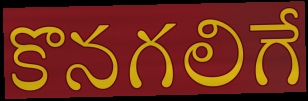
కొనగలిగే